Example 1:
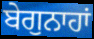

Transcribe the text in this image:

ਬੇਗੁਨਾਹਾਂ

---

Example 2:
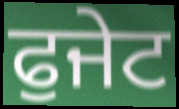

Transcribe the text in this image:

ਫੁਜੇਟ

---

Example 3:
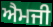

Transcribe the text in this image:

ਐਮਜੀ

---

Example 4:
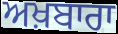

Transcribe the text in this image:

ਅਖ਼ਬਾਰਾ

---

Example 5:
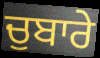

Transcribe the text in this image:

ਚੁਬਾਰੇ